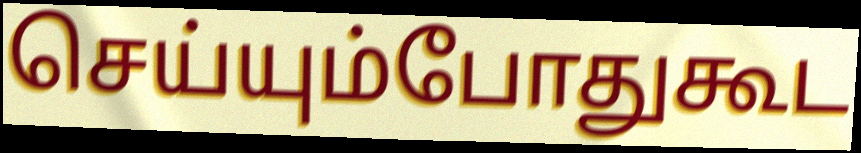
செய்யும்போதுகூட